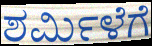
ಶರ್ಮಿಳೆಗೆ